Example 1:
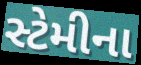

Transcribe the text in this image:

સ્ટેમીના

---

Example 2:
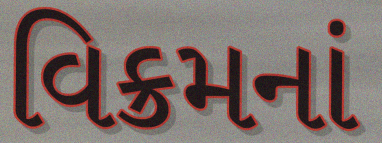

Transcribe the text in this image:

વિક્રમનાં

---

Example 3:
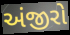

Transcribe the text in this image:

અંજીરો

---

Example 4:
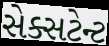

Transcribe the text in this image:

સેક્સટેન્ટ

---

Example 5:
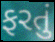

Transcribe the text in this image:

ફરતું